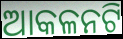
ଆକଳନଟି